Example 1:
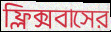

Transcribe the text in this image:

ফ্লিক্সবাসের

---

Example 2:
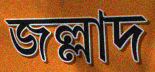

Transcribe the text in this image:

জল্লাদ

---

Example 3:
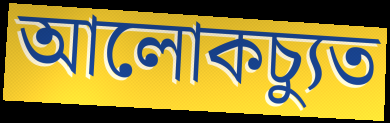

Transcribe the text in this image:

আলোকচ্যুত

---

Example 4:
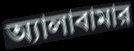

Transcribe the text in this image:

অ্যালাবামার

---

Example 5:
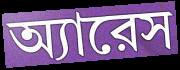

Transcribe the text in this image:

অ্যারেস